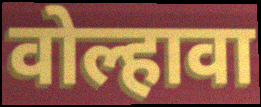
वोल्हावा